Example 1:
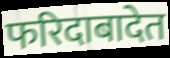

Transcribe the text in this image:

फरिदाबादेत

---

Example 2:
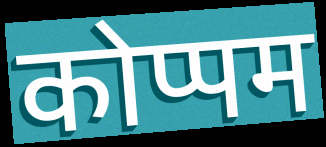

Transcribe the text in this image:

कोप्पम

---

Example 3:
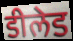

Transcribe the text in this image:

डीलेड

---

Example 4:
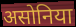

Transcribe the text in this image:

असोनिया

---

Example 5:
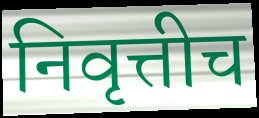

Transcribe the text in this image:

निवृत्तीच